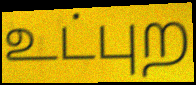
உட்புற